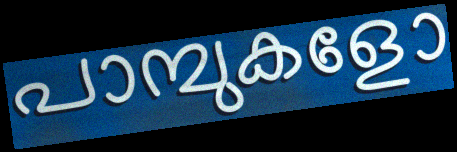
പാമ്പുകളോ